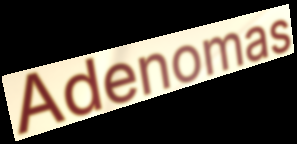
Adenomas